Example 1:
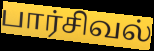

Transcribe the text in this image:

பார்சிவல்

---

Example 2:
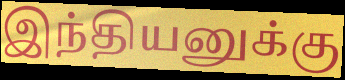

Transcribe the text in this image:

இந்தியனுக்கு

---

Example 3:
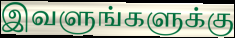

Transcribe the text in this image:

இவளுங்களுக்கு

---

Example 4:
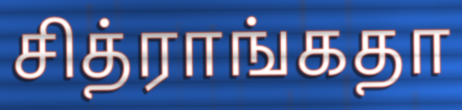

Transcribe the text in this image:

சித்ராங்கதா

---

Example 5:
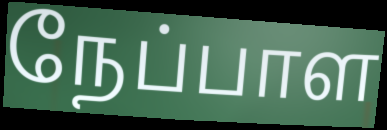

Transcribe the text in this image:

நேப்பாள